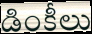
డింకీలు